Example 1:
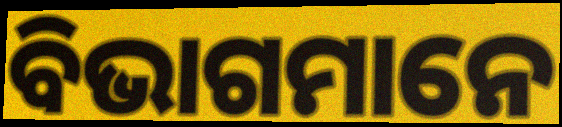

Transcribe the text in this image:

ବିଭାଗମାନେ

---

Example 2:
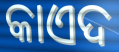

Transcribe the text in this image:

କାଏଦ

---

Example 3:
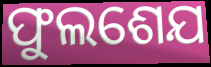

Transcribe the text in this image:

ଫୁଲଶେଯ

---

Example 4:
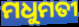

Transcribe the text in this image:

ମଧୁମତୀ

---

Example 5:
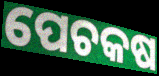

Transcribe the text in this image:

ପେଚକଷ